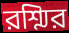
রশ্মির